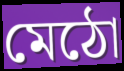
মেঠো